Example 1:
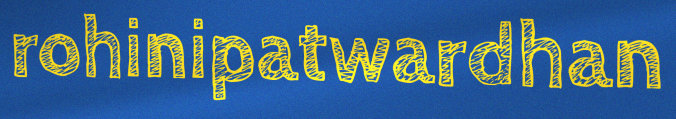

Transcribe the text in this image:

rohinipatwardhan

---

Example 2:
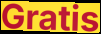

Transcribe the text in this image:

Gratis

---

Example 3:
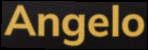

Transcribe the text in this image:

Angelo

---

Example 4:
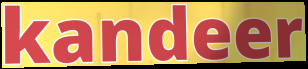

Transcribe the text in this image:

kandeer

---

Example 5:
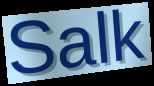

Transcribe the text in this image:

Salk